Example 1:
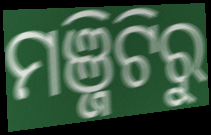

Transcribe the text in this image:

ମଞ୍ଜିଟିରୁ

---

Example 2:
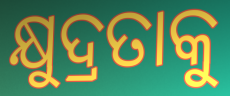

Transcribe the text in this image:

କ୍ଷୁଦ୍ରତାକୁ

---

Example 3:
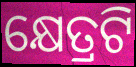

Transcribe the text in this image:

କ୍ଷେତ୍ରଟି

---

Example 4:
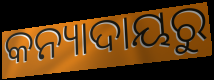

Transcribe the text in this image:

କନ୍ୟାଦାୟରୁ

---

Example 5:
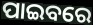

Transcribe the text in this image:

ପାଇବରେ